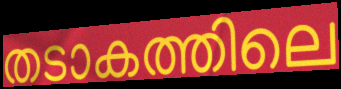
തടാകത്തിലെ